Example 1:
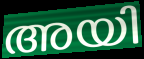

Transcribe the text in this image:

അയി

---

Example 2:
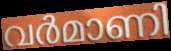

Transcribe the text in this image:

വർമാണി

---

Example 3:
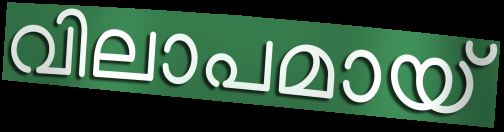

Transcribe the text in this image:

വിലാപമായ്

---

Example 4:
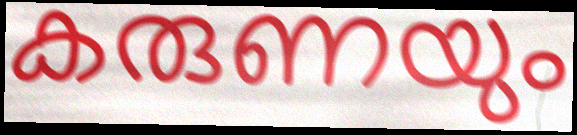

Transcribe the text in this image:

കരുണയും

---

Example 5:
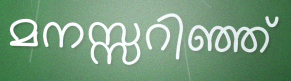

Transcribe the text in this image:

മനസ്സറിഞ്ഞ്